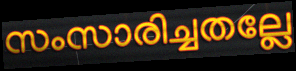
സംസാരിച്ചതല്ലേ